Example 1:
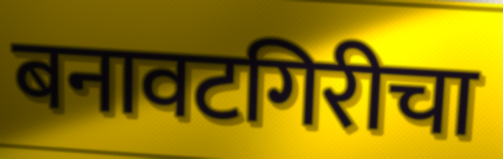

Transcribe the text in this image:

बनावटगिरीचा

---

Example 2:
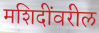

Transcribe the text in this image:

मशिदींवरील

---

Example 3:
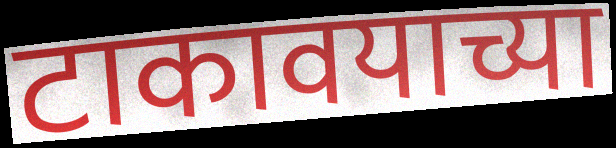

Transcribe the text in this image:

टाकावयाच्या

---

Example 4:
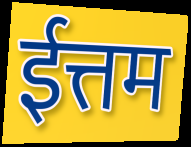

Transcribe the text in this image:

ईत्तम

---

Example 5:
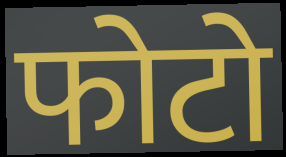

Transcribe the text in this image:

फोटो